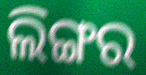
ଲିଙ୍ଗର